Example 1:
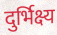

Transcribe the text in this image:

दुर्भिक्ष्य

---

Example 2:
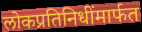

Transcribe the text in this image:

लोकप्रतिनिधींमार्फत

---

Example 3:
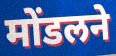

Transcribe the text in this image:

मोंडलने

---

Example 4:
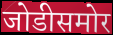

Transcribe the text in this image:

जोडीसमोर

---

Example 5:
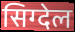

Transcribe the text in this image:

सिग्देल